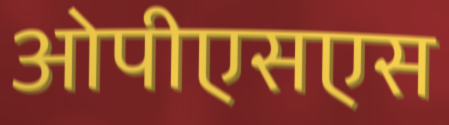
ओपीएसएस